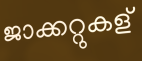
ജാക്കറ്റുകള്